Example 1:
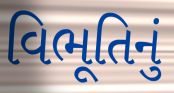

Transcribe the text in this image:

વિભૂતિનું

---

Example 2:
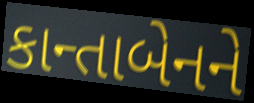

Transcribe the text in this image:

કાન્તાબેનને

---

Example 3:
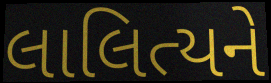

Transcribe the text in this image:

લાલિત્યને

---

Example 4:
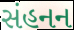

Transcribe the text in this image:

સંહનન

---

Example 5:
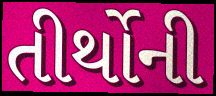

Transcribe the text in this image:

તીર્થોની